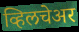
व्हिलचेअर